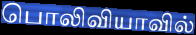
பொலிவியாவில்